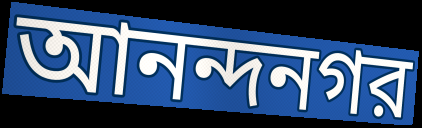
আনন্দনগর